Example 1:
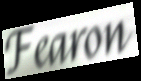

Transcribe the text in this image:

Fearon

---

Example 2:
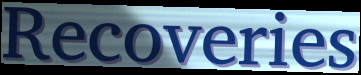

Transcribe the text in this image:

Recoveries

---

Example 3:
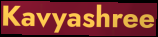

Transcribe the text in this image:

Kavyashree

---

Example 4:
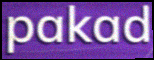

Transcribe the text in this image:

pakad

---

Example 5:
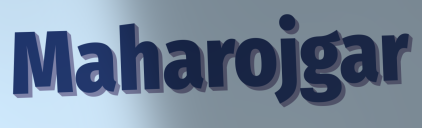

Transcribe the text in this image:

Maharojgar